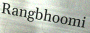
Rangbhoomi